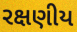
રક્ષણીય